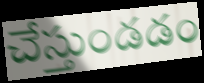
చేస్తుండడం